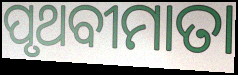
ପୃଥବୀମାତା